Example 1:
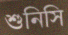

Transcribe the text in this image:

শুনিসি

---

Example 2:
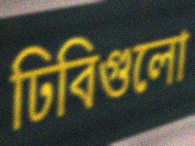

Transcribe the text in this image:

ঢিবিগুলো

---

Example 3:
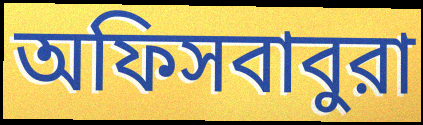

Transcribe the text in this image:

অফিসবাবুরা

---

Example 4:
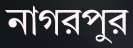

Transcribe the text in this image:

নাগরপুর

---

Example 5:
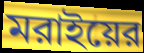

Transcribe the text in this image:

মরাইয়ের